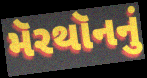
મૅરથૉનનું